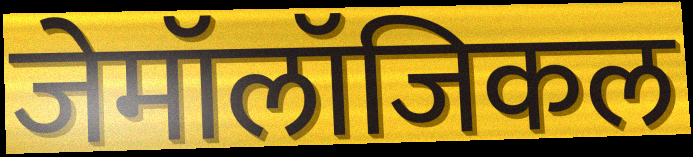
जेमॉलॉजिकल